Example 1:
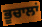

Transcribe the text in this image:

ਭੂਚਾਲਾਂ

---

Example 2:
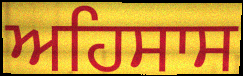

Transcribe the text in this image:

ਅਹਿਸਾਸ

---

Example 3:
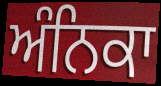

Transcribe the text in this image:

ਅੰਨਿਕਾ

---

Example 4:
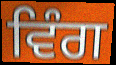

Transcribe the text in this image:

ਵਿੰਗ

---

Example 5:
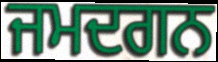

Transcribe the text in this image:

ਜਮਦਗਨ